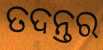
ତଦନ୍ତର